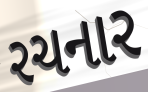
રચનાર